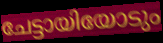
ചേട്ടായിയോടും